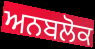
ਅਨਬਲੋਕ